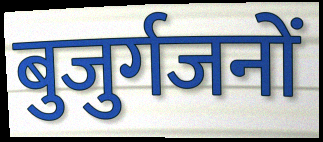
बुजुर्गजनों